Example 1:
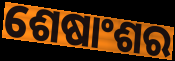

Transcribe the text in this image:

ଶେଷାଂଶର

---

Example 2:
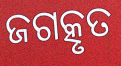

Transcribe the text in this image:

ଜଗତ୍କୃତ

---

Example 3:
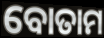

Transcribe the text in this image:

ବୋତାମ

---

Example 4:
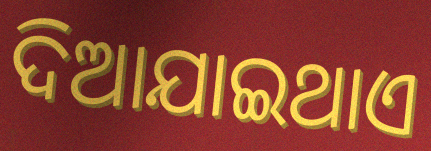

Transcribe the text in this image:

ଦିଆଯାଇଥାଏ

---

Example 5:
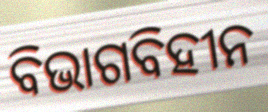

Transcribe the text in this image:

ବିଭାଗବିହୀନ